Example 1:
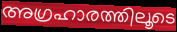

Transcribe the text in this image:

അഗ്രഹാരത്തിലൂടെ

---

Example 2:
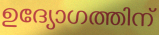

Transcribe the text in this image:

ഉദ്യോഗത്തിന്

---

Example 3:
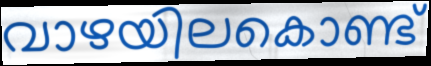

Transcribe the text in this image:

വാഴയിലകൊണ്ട്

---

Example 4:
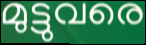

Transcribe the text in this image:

മുട്ടുവരെ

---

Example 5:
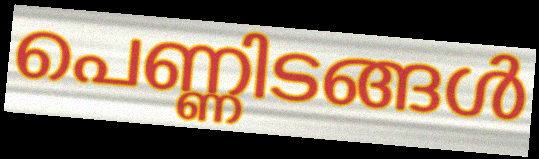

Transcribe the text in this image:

പെണ്ണിടങ്ങൾ